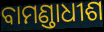
ବାମଣ୍ଡାଧୀଶ